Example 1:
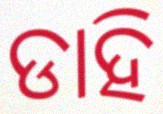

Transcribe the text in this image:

ଡାହି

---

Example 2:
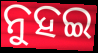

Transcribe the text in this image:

ନୁହଇ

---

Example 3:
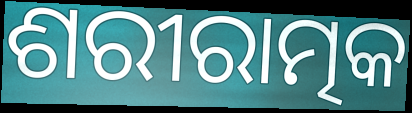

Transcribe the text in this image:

ଶରୀରାତ୍ମକ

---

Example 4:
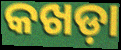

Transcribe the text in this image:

କଖଡ଼ା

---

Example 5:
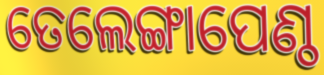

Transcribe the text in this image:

ତେଲେଙ୍ଗାପେଣ୍ଠ